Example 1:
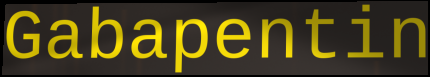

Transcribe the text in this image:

Gabapentin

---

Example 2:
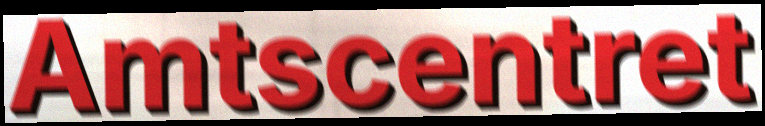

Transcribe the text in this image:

Amtscentret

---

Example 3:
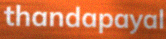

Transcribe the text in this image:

thandapayal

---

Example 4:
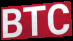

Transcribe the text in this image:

BTC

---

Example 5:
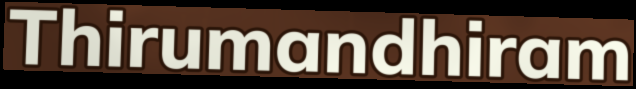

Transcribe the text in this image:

Thirumandhiram